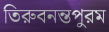
তিরুবনন্তপুরম